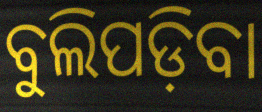
ବୁଲିପଡ଼ିବା